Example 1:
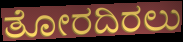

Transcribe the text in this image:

ತೋರದಿರಲು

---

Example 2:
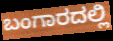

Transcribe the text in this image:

ಬಂಗಾರದಲ್ಲಿ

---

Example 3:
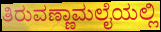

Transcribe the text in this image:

ತಿರುವಣ್ಣಾಮಲೈಯಲ್ಲಿ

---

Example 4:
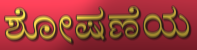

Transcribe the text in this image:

ಶೋಷಣೆಯ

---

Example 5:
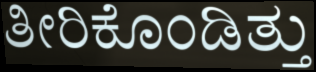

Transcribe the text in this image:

ತೀರಿಕೊಂಡಿತ್ತು